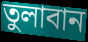
তুলাবান